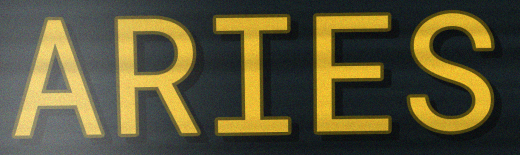
ARIES